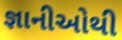
જ્ઞાનીઓથી